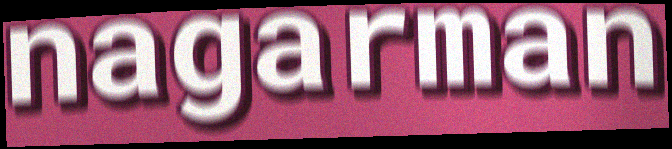
nagarman